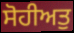
ਸੋਹੀਅਤੁ